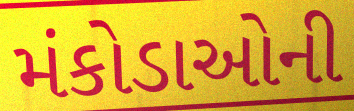
મંકોડાઓની